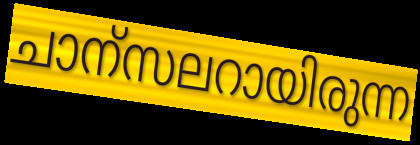
ചാന്സലറായിരുന്ന